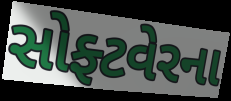
સોફ્ટવેરના